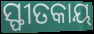
ସ୍ଫୀତକାୟ